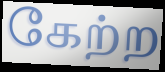
கேற்ற